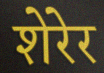
शेरेर